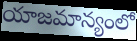
యాజమాన్యంలో